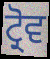
ਟ੍ਰੋਵ